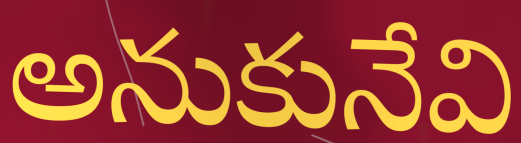
అనుకునేవి